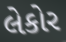
લેકોર